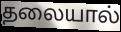
தலையால்